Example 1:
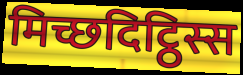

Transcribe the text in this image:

मिच्छदिट्ठिस्स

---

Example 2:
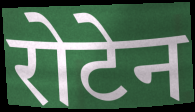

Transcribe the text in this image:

रोटेन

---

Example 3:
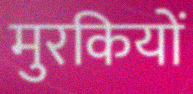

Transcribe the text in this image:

मुरकियों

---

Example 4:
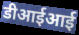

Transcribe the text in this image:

डीआईआई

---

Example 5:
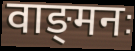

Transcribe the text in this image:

वाङ्मनः